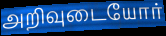
அறிவுடையோர்